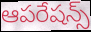
ఆపరేషన్స్